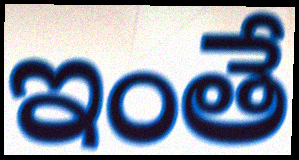
ఇంతే